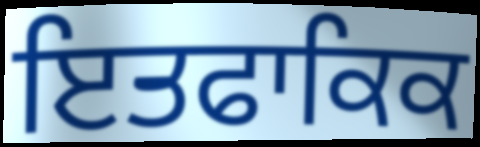
ਇਤਫਾਕਿਕ